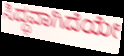
ಸಿದ್ಧವಾಗಿದೆಯೇ